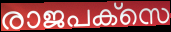
രാജപക്‌സെ